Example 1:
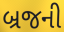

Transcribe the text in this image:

બ્રજની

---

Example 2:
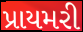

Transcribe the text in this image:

પ્રાયમરી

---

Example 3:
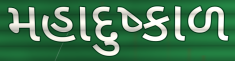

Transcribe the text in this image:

મહાદુષ્કાળ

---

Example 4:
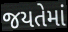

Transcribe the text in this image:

જયતેમાં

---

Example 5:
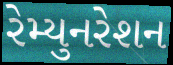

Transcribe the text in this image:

રેમ્યુનરેશન